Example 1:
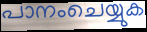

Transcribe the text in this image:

പാനംചെയ്യുക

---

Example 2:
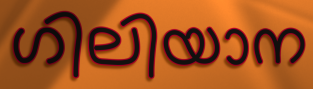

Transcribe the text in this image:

ഗിലിയാന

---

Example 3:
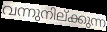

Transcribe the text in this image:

വന്നുനില്ക്കുന്ന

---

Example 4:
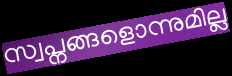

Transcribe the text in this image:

സ്വപ്നങ്ങളൊന്നുമില്ല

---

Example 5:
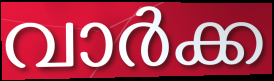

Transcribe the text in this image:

വാർക്ക